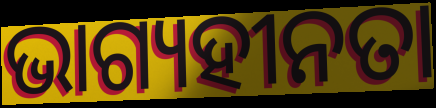
ଭାଗ୍ୟହୀନତା